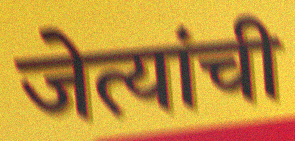
जेत्यांची